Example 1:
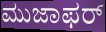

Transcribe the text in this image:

ಮುಜಾಫರ್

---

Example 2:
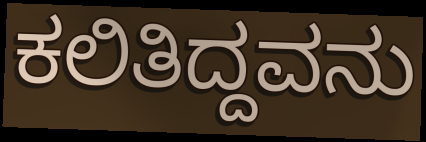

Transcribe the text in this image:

ಕಲಿತಿದ್ದವನು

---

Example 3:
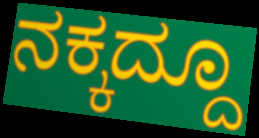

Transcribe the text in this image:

ನಕ್ಕದ್ದೂ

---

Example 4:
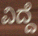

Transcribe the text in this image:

ವಿದ್ದೆ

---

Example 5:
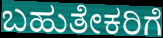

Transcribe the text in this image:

ಬಹುತೇಕರಿಗೆ